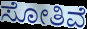
ಸೋತಿವೆ